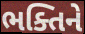
ભક્તિને